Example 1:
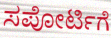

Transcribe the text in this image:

ಸಪೋರ್ಟಿಗೆ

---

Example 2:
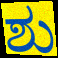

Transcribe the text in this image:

ಶು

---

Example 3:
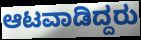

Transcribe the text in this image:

ಆಟವಾಡಿದ್ದರು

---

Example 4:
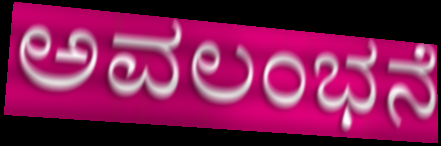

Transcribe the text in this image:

ಅವಲಂಭನೆ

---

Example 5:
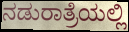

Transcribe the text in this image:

ನಡುರಾತ್ರೆಯಲ್ಲಿ